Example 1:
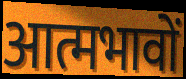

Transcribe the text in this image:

आत्मभावों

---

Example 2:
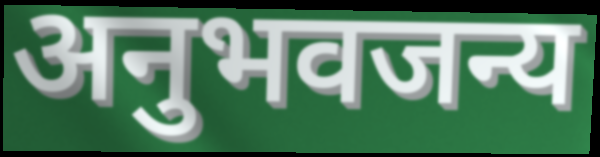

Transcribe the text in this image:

अनुभवजन्य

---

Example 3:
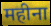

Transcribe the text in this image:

महीना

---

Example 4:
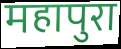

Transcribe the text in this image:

महापुरा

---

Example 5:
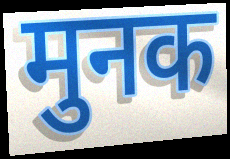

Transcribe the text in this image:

मुनक